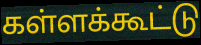
கள்ளக்கூட்டு